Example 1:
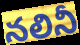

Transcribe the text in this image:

నలినీ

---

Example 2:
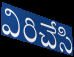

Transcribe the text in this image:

విరిచేసి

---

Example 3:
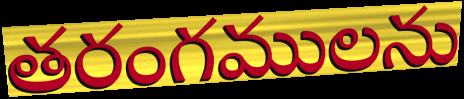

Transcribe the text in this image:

తరంగములను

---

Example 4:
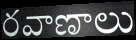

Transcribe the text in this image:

రవాణాలు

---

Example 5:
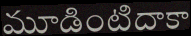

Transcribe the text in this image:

మూడింటిదాకా